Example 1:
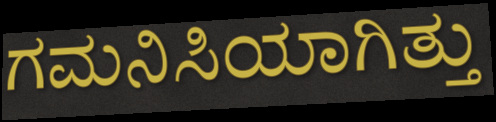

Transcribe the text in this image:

ಗಮನಿಸಿಯಾಗಿತ್ತು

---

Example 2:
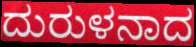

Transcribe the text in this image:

ದುರುಳನಾದ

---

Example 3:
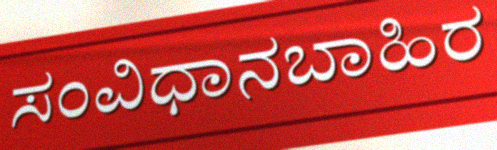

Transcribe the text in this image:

ಸಂವಿಧಾನಬಾಹಿರ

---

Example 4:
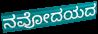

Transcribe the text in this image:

ನವೋದಯದ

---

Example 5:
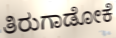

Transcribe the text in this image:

ತಿರುಗಾಡೋಕೆ